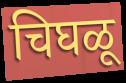
चिघळू